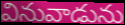
వినువాడును